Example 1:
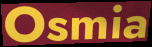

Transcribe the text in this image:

Osmia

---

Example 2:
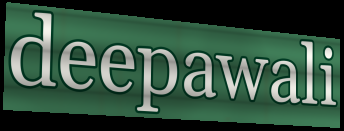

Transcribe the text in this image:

deepawali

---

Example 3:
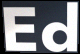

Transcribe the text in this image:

Ed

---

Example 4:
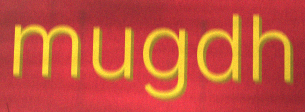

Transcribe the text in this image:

mugdh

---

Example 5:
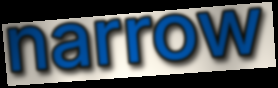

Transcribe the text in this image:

narrow